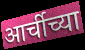
आर्चीच्या